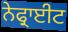
ਨੇਫ੍ਰਾਈਟ